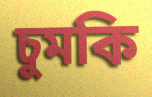
চুমকি